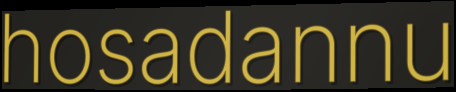
hosadannu